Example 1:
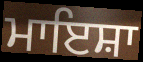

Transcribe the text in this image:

ਮਾਇਸ਼ਾ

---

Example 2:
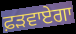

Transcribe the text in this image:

ਫ਼ੜਵਾਏਗਾ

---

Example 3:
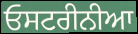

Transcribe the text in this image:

ਓਸਟਰੀਨੀਆ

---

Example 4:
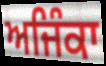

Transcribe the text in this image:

ਅਜਿੰਕਾ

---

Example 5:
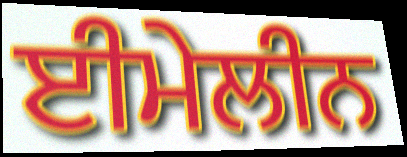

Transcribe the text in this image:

ਈਮੇਲੀਨ